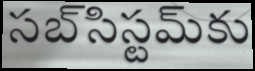
సబ్‌సిస్టమ్‌కు